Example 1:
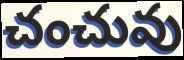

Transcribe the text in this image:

చంచువు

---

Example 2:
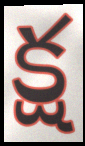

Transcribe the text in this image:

క్ష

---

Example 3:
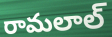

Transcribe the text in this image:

రామలాల్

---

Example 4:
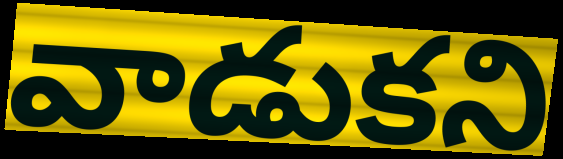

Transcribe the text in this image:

వాడుకని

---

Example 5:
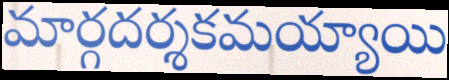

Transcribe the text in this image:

మార్గదర్శకమయ్యాయి